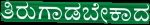
ತಿರುಗಾಡಬೇಕಾದ